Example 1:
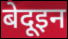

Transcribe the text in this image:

बेदूइन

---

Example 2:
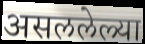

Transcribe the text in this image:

असललेल्या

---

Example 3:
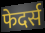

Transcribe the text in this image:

फेदर्स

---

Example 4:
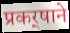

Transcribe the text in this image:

प्रकर्षाने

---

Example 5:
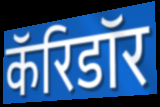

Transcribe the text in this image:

कॅरिडॉर